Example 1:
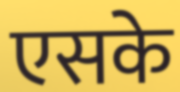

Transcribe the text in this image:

एसके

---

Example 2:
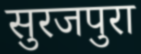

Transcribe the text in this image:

सुरजपुरा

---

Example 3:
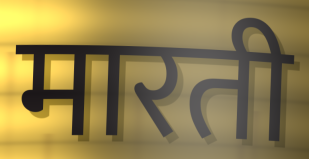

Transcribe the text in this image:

मारती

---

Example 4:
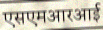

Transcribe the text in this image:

एसएमआरआई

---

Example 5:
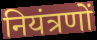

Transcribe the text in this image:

नियंत्रणों